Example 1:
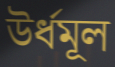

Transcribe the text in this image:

উর্ধমূল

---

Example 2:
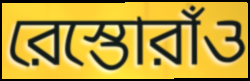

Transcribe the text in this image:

রেস্তোরাঁও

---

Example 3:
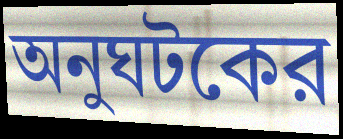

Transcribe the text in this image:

অনুঘটকের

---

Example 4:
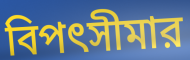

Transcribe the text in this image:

বিপৎসীমার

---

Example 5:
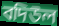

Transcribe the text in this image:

বদিউল